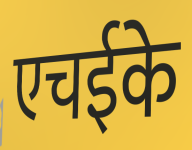
एचईके